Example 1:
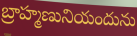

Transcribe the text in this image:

బ్రాహ్మణునియందును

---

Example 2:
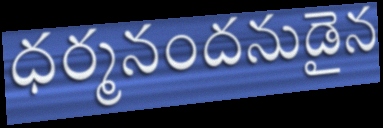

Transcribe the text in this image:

ధర్మనందనుడైన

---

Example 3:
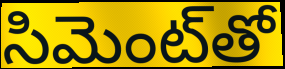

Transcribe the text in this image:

సిమెంట్‌తో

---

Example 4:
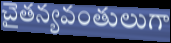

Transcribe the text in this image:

చైతన్యవంతులుగా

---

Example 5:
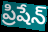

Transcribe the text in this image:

ప్రిషేన్